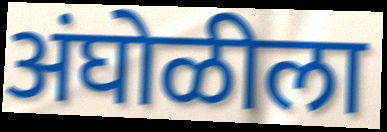
अंघोळीला